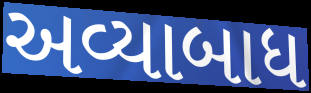
અવ્યાબાધ